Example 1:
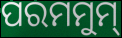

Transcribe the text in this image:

ପରମମୁମ୍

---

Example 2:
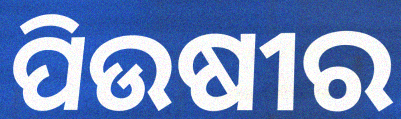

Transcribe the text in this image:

ପିଉଷୀର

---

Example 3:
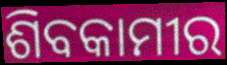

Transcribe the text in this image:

ଶିବକାମୀର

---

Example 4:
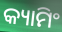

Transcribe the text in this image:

କ୍ୟାମିଂ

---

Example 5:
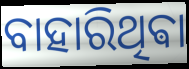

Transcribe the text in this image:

ବାହାରିଥିଵା